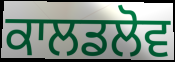
ਕਾਲਡਲੋਵ